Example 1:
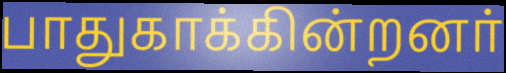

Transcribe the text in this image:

பாதுகாக்கின்றனர்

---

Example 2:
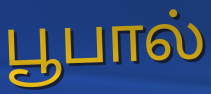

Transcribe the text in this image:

பூபால்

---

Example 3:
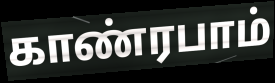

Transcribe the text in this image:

காண்ரபாம்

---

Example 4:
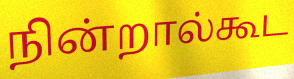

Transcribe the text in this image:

நின்றால்கூட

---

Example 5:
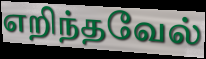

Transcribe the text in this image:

எறிந்தவேல்